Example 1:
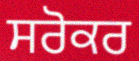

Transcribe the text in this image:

ਸਰੋਕਰ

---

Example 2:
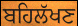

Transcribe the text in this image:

ਬਹਿਲੱਖਣ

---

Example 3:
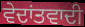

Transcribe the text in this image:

ਵੇਦਾਂਤਵਾਦੀ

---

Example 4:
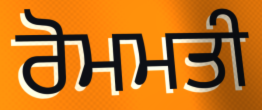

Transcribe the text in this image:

ਰੋਮਮਤੀ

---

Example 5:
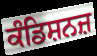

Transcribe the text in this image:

ਕੰਡਿਸ਼ਨਜ਼